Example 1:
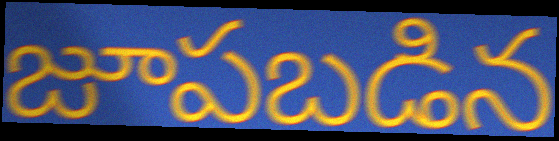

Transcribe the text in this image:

జూపబడిన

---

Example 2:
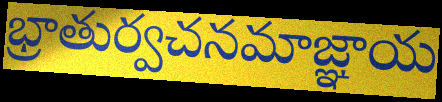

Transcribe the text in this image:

భ్రాతుర్వచనమాజ్ఞాయ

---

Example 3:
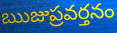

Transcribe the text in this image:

ఋజుప్రవర్తనం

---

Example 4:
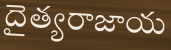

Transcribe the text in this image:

దైత్యరాజాయ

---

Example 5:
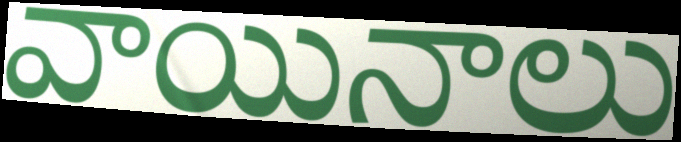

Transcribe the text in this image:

వాయినాలు